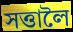
সত্তালৈ